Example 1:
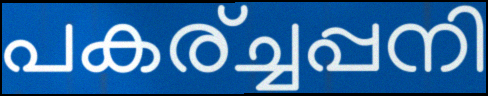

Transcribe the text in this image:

പകര്ച്ചപ്പനി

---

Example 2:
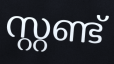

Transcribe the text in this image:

സ്റ്റണ്ട്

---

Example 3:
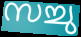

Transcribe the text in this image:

സച്ചു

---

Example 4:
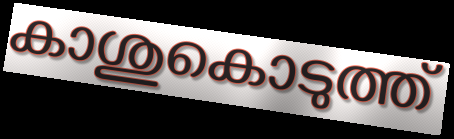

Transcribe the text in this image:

കാശുകൊടുത്ത്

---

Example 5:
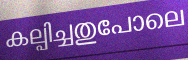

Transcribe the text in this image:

കല്പിച്ചതുപോലെ